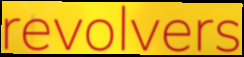
revolvers